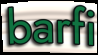
barfi